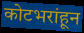
कोटभरांहून